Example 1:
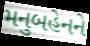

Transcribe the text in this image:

મનુબહેનને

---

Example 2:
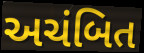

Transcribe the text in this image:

અચંબિત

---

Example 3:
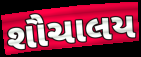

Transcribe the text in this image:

શૌચાલય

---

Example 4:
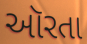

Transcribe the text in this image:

ઑરતા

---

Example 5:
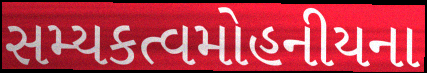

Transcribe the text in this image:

સમ્યકત્વમોહનીયના